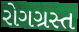
રોગગ્રસ્ત